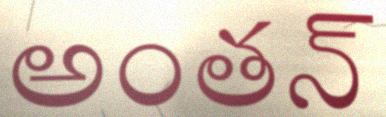
అంతన్